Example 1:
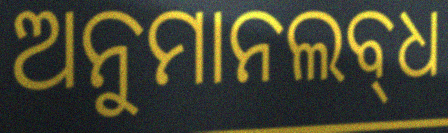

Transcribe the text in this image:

ଅନୁମାନଲବ୍‌ଧ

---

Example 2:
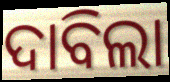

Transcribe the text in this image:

ଦାବିଲା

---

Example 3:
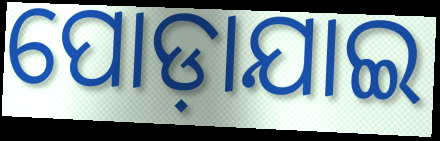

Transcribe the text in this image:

ପୋଡ଼ାଯାଇ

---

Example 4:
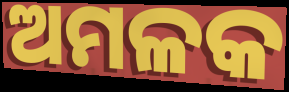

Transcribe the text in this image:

ଅମଳକ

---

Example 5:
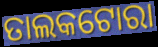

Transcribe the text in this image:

ତାଲକଟୋରା